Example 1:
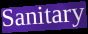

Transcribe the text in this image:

Sanitary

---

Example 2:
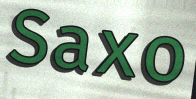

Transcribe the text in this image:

Saxo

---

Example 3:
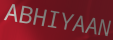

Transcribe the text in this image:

ABHIYAAN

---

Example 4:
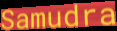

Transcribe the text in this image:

Samudra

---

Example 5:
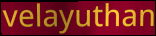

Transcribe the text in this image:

velayuthan